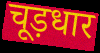
चूड़धार